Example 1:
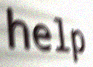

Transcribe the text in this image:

help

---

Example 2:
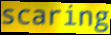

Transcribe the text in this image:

scaring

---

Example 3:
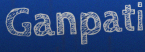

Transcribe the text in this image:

Ganpati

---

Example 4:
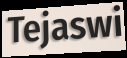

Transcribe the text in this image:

Tejaswi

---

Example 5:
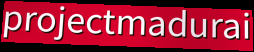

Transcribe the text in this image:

projectmadurai